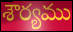
శౌర్యము